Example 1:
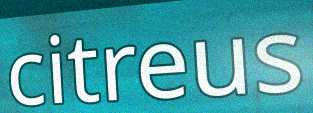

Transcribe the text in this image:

citreus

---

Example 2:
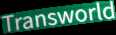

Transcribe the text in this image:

Transworld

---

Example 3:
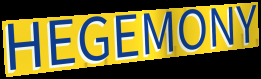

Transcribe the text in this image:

HEGEMONY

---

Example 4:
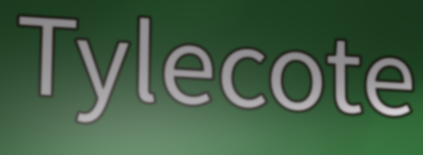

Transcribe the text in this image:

Tylecote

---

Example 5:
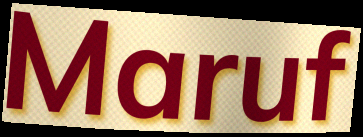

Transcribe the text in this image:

Maruf